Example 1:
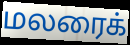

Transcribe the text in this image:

மலரைக்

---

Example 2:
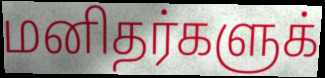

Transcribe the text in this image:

மனிதர்களுக்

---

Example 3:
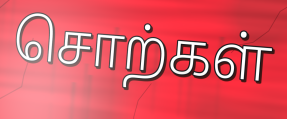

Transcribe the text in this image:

சொற்கள்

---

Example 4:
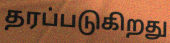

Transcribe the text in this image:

தரப்படுகிறது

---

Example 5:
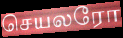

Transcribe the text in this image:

செயலரோ